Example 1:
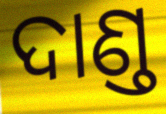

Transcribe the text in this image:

ଦାଣ୍ଡ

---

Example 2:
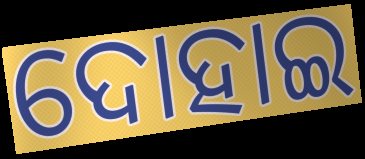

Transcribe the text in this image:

ଦୋହାଇ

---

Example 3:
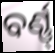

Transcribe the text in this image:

ବର୍ଣ୍ଣ୍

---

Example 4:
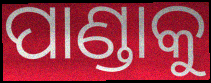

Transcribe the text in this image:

ପାଣ୍ଡାକୁ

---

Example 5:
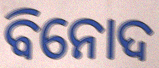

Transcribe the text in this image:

ବିନୋଦ